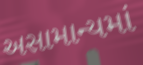
અસામાન્યમાં